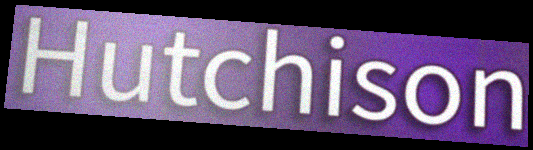
Hutchison